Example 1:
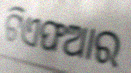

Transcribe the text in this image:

ଟିଏଫଆର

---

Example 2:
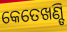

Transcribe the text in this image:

କେତେଖଣ୍ଡି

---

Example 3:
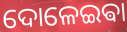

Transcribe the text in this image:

ଦୋଳେଇଵା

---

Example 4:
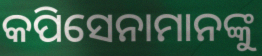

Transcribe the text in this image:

କପିସେନାମାନଙ୍କୁ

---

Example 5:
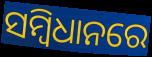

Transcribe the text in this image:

ସମ୍ବିଧାନରେ